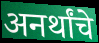
अनर्थांचे